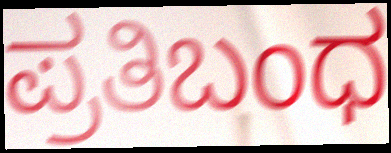
ಪ್ರತಿಬಂಧ